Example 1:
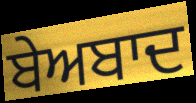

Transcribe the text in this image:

ਬੇਅਬਾਦ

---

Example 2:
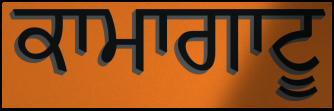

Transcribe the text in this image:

ਕਾਮਾਗਾਟੂ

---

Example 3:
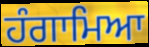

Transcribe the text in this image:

ਹੰਗਾਮਿਆ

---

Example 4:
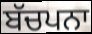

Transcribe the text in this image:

ਬੱਚਪਨਾ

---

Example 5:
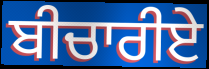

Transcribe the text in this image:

ਬੀਚਾਰੀਏ